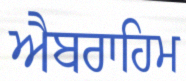
ਐਬਰਾਹਿਮ